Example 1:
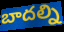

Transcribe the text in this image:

బాదల్ని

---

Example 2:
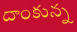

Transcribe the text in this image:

దాంకున్న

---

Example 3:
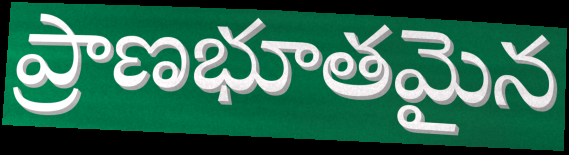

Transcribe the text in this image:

ప్రాణభూతమైన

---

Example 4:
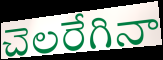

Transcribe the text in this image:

చెలరేగినా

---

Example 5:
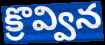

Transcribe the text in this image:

క్రొవ్విన